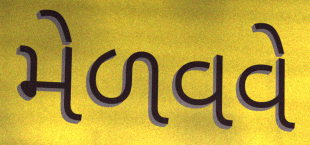
મેળવવે